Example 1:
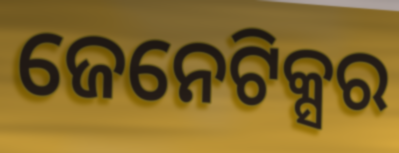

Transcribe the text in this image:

ଜେନେଟିକ୍ସର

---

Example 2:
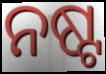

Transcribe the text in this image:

ନଷ୍ଟ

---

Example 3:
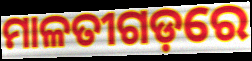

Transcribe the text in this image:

ମାଳତୀଗଡ଼ରେ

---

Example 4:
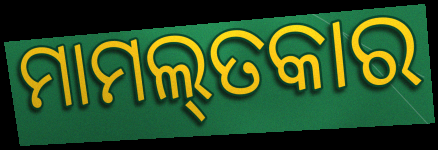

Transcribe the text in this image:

ମାମଲ୍‌ତକାର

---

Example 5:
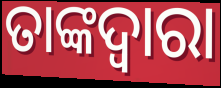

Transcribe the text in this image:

ତାଙ୍କଦ୍ୱାରା